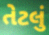
તેટલું